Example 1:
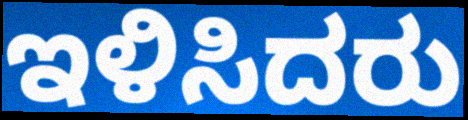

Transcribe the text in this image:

ಇಳಿಸಿದರು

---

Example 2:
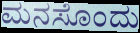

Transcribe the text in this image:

ಮನಸೊಂದು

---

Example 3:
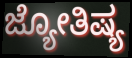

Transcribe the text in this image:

ಜ್ಯೋತಿಷ್ಯ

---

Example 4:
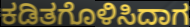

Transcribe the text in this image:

ಕಡಿತಗೊಳಿಸಿದಾಗ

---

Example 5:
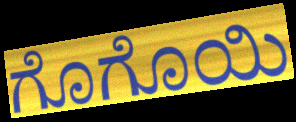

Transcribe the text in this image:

ಗೊಗೊಯಿ